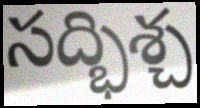
సద్భిశ్చ